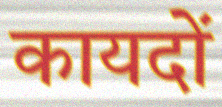
कायदों